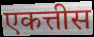
एकत्तीस